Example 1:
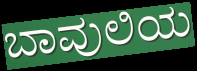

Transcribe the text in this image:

ಬಾವುಲಿಯ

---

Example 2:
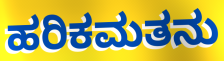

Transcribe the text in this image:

ಹರಿಕಮತನು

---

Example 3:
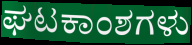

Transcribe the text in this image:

ಘಟಕಾಂಶಗಳು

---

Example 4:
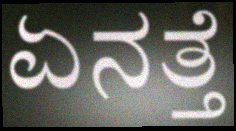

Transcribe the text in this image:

ಏನತ್ತೆ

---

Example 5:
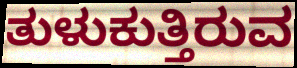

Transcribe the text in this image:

ತುಳುಕುತ್ತಿರುವ